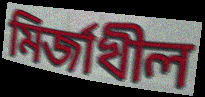
মির্জাখীল